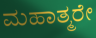
ಮಹಾತ್ಮರೇ